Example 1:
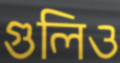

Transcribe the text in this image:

গুলিও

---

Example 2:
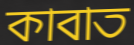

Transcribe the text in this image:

কাবাত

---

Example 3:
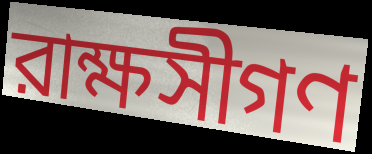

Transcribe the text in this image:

রাক্ষসীগণ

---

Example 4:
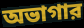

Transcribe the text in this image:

অভাগার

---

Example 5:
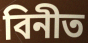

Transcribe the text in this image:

বিনীত